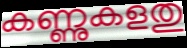
കണ്ണുകളതു